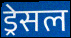
ड्रेसल